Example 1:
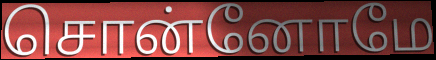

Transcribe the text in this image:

சொன்னோமே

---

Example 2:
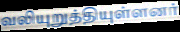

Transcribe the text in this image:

வலியுறுத்தியுள்ளனர்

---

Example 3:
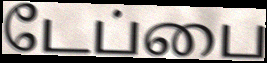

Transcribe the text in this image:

டேப்பை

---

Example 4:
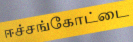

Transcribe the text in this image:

ஈச்சங்கோட்டை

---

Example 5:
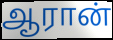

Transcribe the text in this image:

ஆரான்